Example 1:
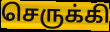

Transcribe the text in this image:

செருக்கி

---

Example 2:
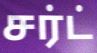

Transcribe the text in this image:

சர்ட்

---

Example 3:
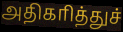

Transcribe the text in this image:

அதிகரித்துச்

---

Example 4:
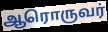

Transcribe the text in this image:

ஆரொருவர்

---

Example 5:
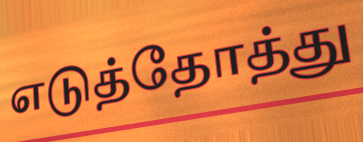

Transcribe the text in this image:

எடுத்தோத்து